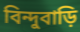
বিন্দুবাড়ি